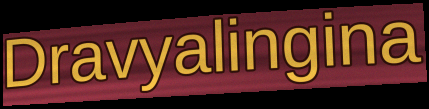
Dravyalingina